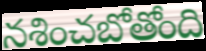
నశించబోతోంది